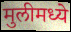
मुलीमध्ये